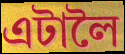
এটালৈ